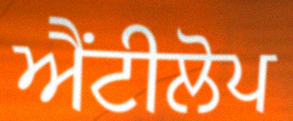
ਐਂਟੀਲੋਪ